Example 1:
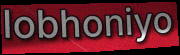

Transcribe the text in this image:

lobhoniyo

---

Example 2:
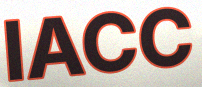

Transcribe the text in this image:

IACC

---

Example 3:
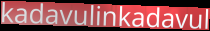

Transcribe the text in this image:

kadavulinkadavul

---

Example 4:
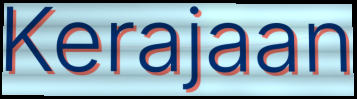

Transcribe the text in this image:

Kerajaan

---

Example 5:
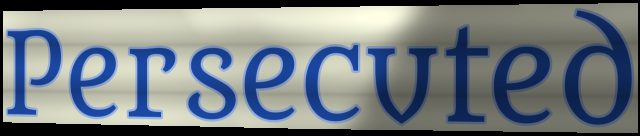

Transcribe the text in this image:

Persecuted